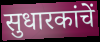
सुधारकांचें